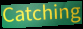
Catching